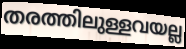
തരത്തിലുള്ളവയല്ല